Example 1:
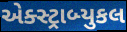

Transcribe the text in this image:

એક્સ્ટ્રાબ્યુકલ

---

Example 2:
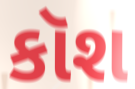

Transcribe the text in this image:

કૉશ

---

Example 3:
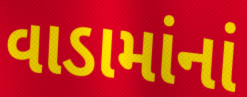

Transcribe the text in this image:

વાડામાંનાં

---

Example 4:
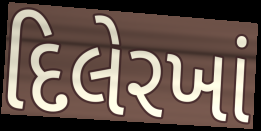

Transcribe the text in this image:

દિલેરખાં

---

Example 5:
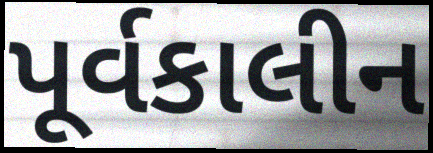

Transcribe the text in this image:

પૂર્વકાલીન